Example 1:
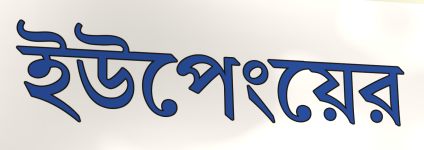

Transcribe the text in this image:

ইউপেংয়ের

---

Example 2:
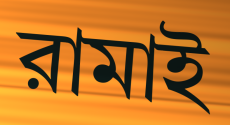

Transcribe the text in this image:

রামাই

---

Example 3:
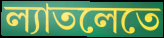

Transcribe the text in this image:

ল্যাতলেতে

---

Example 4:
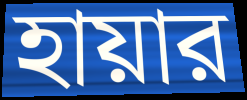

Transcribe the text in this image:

হায়ার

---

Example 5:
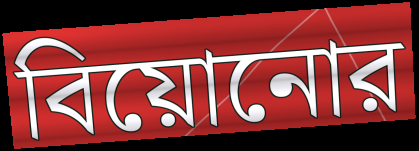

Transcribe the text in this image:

বিয়োনোর